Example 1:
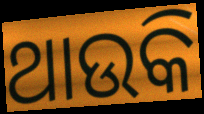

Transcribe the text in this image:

ଥାଉକି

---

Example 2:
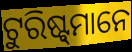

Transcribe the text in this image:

ଟୁରିଷ୍ଟ୍‍ମାନେ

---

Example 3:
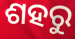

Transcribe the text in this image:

ଶହରୁ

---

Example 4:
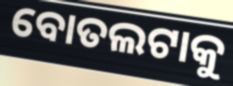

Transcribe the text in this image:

ବୋତଲଟାକୁ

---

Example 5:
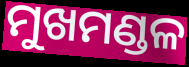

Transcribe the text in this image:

ମୁଖମଣ୍ଡଳ